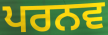
ਪਰਨਵ